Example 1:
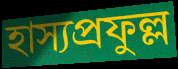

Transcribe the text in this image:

হাস্যপ্রফুল্ল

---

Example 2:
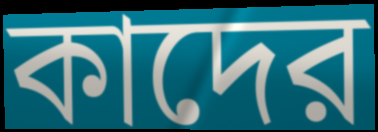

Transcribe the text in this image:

কাদের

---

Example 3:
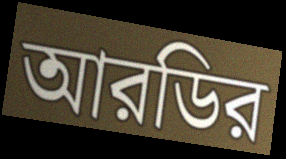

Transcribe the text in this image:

আরডির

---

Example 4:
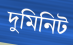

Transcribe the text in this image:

দুমিনিট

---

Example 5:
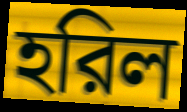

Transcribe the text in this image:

হরিল